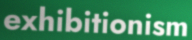
exhibitionism